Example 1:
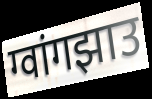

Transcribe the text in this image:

ग्वांगझाउ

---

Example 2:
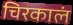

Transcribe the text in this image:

चिरकालं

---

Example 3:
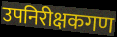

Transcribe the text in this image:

उपनिरीक्षकगण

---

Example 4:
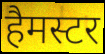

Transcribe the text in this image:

हैमस्टर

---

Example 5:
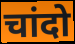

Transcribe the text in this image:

चांदो